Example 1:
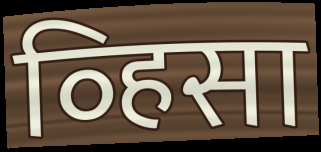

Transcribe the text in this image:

व्हिसा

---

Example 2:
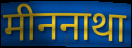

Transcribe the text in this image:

मीननाथा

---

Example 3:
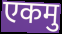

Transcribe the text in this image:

एकमु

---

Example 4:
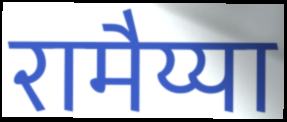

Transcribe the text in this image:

रामैय्या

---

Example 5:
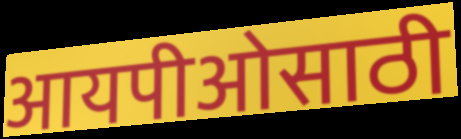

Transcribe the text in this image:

आयपीओसाठी